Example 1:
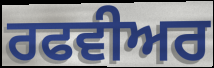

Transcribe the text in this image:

ਰਫਵੀਅਰ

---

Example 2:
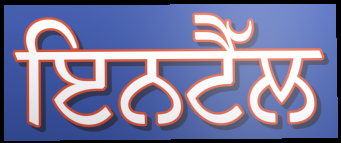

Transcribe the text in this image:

ਇਨਟੈੱਲ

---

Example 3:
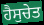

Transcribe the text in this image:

ਹੈਸੁਚੇਤ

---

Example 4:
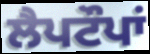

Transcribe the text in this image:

ਲੈਪਟੌਪਾਂ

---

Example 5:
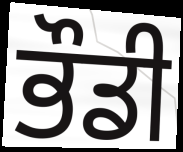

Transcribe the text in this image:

ਭੌਡੀ